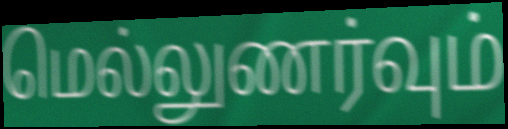
மெல்லுணர்வும்